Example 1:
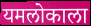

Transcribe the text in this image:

यमलोकाला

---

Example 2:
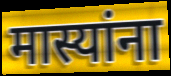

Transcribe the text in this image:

मास्यांना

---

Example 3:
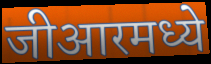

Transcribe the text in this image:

जीआरमध्ये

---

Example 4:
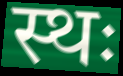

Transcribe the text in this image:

स्थः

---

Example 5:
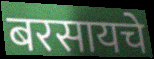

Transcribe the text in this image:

बरसायचे